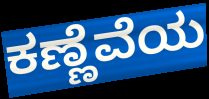
ಕಣ್ಣೆವೆಯ